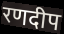
रणदीप